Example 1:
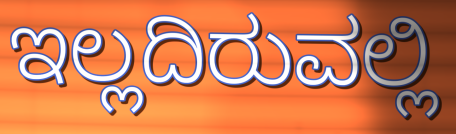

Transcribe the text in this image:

ಇಲ್ಲದಿರುವಲ್ಲಿ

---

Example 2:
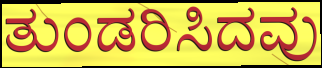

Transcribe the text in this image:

ತುಂಡರಿಸಿದವು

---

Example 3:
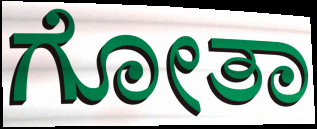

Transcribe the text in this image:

ಗೋತಾ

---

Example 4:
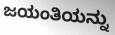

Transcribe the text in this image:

ಜಯಂತಿಯನ್ನು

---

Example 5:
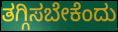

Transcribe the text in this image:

ತಗ್ಗಿಸಬೇಕೆಂದು